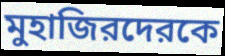
মুহাজিরদেরকে